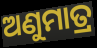
ଅଣୁମାତ୍ର